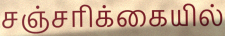
சஞ்சரிக்கையில்